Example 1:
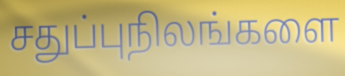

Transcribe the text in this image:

சதுப்புநிலங்களை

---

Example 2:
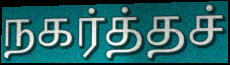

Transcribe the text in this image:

நகர்த்தச்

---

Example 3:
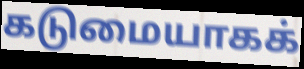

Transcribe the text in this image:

கடுமையாகக்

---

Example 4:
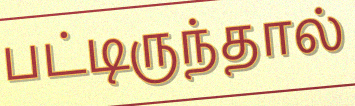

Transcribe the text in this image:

பட்டிருந்தால்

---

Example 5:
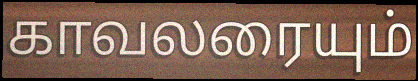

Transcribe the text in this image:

காவலரையும்